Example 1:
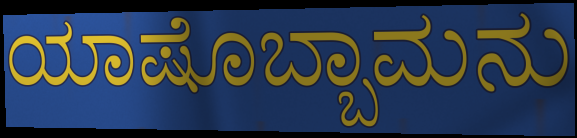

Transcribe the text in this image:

ಯಾಷೊಬ್ಬಾಮನು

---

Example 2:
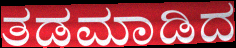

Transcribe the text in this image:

ತಡಮಾಡಿದ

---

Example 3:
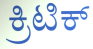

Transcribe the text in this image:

ಕ್ರಿಟಿಕ್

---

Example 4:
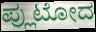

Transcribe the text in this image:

ಪ್ಲುಟೋದ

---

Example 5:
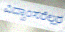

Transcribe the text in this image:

ವಿದ್ವಾಂಸರೆಲ್ಲರ